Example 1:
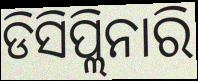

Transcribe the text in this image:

ଡିସିପ୍ଲିନାରି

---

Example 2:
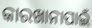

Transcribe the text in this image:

କାରଖାନାପାଇଁ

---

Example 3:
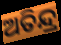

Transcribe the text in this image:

ଅତିନ୍ଦ୍ର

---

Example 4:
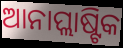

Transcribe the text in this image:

ଆନାପ୍ଲାଷ୍ଟିକ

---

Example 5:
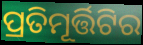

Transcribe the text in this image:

ପ୍ରତିମୂର୍ତ୍ତିଟିର